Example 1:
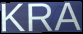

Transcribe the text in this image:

KRA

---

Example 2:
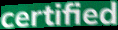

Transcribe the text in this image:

certified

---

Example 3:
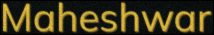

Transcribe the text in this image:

Maheshwar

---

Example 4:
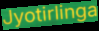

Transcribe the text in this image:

Jyotirlinga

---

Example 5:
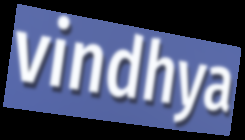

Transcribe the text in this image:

vindhya